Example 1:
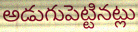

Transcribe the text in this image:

అడుగుపెట్టినట్లు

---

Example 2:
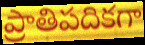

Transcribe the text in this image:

ప్రాతిపదికగా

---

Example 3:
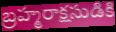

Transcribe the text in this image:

బ్రహ్మరాక్షసుడికి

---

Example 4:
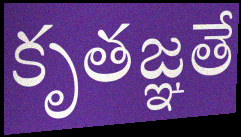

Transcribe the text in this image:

కృతజ్ఞతే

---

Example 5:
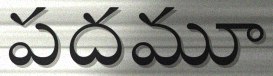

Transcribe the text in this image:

పదమూ